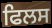
ਫਿਲਸ